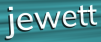
jewett